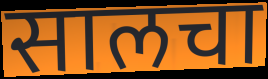
सालचा